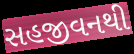
સહજીવનથી